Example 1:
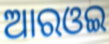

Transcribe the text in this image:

ଆରଓଇ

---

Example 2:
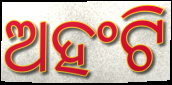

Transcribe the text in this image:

ଅହଂଟି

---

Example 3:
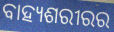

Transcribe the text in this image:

ବାହ୍ୟଶରୀରର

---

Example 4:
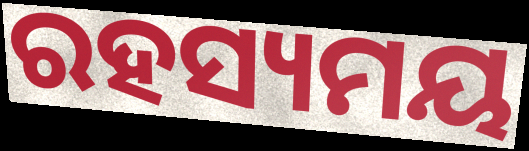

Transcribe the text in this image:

ରହସ୍ୟମୟ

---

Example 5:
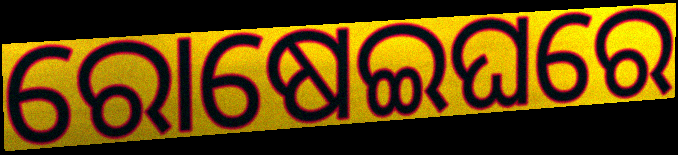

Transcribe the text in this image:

ରୋଷେଇଘରେ